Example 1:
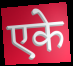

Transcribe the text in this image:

एके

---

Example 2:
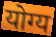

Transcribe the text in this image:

योग्य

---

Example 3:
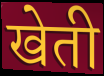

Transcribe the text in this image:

खेती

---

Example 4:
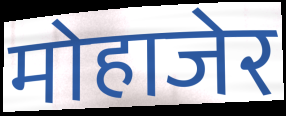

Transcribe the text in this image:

मोहाजेर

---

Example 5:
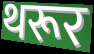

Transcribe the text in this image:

थरूर